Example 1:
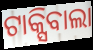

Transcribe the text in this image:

ଟାକ୍ସିବାଲା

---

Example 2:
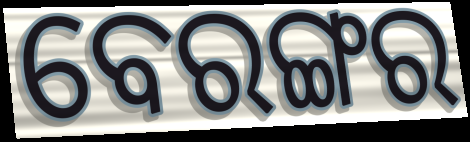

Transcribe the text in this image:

ବେରଙ୍ଗର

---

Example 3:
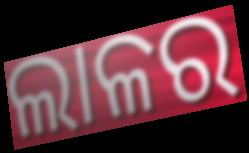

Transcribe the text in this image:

ଲାଳର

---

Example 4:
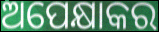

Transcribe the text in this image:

ଅପେକ୍ଷାକର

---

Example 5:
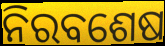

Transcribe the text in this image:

ନିରବଶେଷ